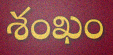
శంఖం